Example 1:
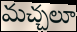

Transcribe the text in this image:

మచ్చలూ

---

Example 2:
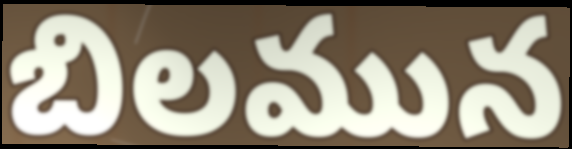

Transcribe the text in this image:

బిలమున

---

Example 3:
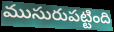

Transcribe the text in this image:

ముసురుపట్టింది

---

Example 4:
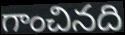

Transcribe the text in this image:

గాంచినది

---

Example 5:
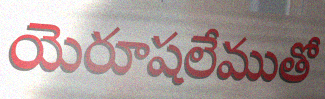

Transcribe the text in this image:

యెరూషలేముతో